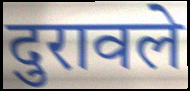
दुरावले